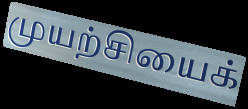
முயற்சியைக்